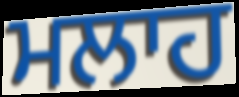
ਮਲਾਹ